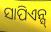
ସାପିଏନ୍ସ୍